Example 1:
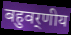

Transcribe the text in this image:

बहुवर्णीय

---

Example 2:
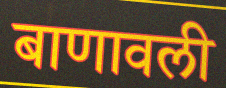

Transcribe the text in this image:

बाणावली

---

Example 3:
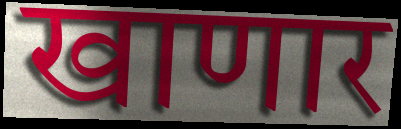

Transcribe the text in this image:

खाणार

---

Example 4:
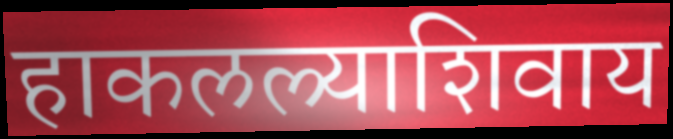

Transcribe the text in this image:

हाकलल्याशिवाय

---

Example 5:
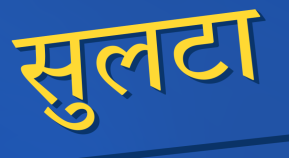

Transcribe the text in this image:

सुलटा